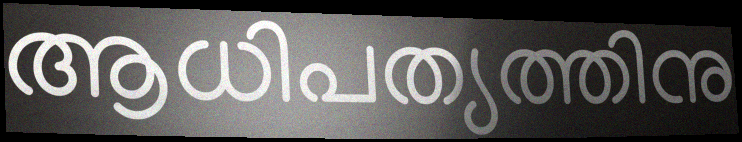
ആധിപത്യത്തിനു